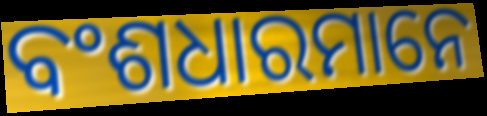
ବଂଶଧାରମାନେ